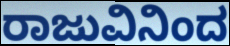
ರಾಜುವಿನಿಂದ